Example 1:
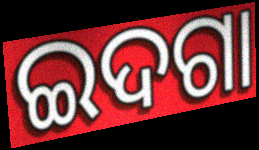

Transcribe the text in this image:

ଇଦଗା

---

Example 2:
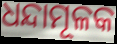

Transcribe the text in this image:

ଧନ୍ଦାମୂଳକ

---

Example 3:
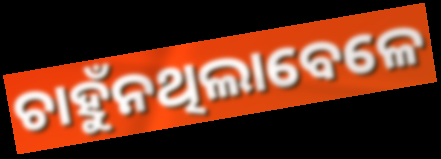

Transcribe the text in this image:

ଚାହୁଁନଥିଲାବେଳେ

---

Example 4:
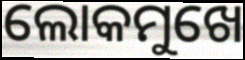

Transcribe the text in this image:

ଲୋକମୁଖେ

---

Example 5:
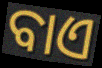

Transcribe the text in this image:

ବାଏ